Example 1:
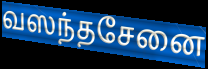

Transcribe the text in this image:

வஸந்தசேனை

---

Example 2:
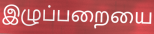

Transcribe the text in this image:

இழுப்பறையை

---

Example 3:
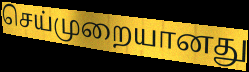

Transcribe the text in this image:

செய்முறையானது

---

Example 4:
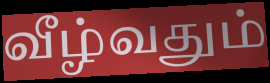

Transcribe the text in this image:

வீழ்வதும்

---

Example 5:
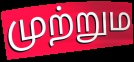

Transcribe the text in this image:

முற்றும